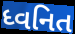
ધ્વનિત